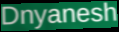
Dnyanesh